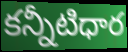
కన్నీటిధార